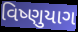
વિષ્ણુયાગ